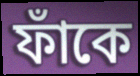
ফাঁকে